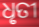
ଧୃତୀ